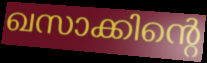
ഖസാക്കിന്റെ